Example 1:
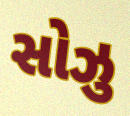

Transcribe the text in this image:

સોઝુ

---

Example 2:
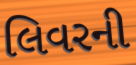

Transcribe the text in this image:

લિવરની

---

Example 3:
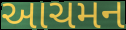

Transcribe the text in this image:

આચમન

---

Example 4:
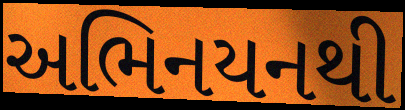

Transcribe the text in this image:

અભિનયનથી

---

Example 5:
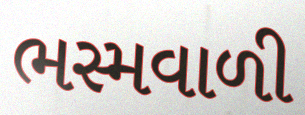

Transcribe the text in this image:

ભસ્મવાળી